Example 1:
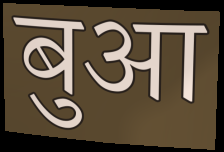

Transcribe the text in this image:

बुआ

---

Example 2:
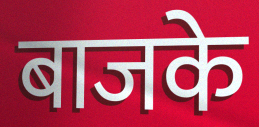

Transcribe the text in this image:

बाजके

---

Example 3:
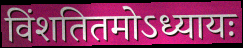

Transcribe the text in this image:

विंशतितमोऽध्यायः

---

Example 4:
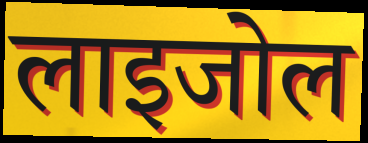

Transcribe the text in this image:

लाइजोल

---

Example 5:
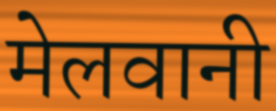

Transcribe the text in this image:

मेलवानी